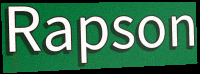
Rapson